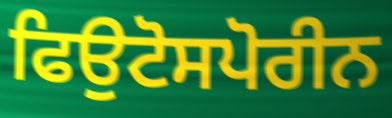
ਫਿਉਟੋਸਪੋਰੀਨ